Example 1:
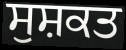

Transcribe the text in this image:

ਸੁਸ਼ਕਤ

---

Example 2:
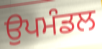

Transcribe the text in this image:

ਉਪਮੰਡਲ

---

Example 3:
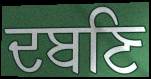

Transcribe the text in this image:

ਦਬਣਿ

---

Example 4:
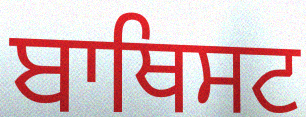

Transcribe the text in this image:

ਬਾਥਿਸਟ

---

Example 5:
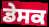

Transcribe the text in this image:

ਡੇਸਕ